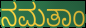
ನಮತಾಂ